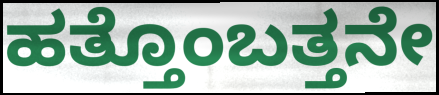
ಹತ್ತೊಂಬತ್ತನೇ